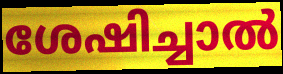
ശേഷിച്ചാൽ